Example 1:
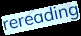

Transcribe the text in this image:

rereading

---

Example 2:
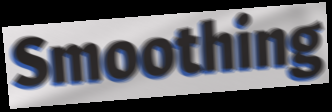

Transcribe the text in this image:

Smoothing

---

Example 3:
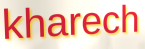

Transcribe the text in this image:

kharech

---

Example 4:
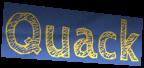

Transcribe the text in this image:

Quack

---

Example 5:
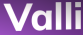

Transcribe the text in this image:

Valli